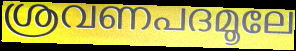
ശ്രവണപദമൂലേ